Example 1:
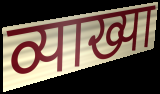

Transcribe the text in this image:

व्याख्‍या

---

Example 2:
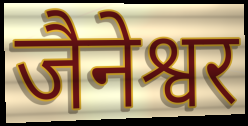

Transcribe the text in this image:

जैनेश्वर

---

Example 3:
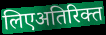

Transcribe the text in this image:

लिएअतिरिक्त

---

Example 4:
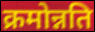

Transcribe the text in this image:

क्रमोन्नति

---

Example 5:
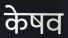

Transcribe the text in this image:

केषव